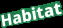
Habitat